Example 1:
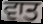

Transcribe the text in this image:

ਵਾਤ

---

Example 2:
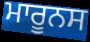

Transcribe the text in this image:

ਮਾਰੂਨਸ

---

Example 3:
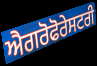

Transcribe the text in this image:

ਐਗਰੋਫੋਰੇਸਟਰੀ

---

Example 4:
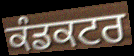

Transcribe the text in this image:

ਕੰਡਕਟਰ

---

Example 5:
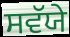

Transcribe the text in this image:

ਸਵੱਯੇ